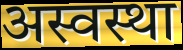
अस्वस्था